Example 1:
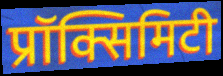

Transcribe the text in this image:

प्रॉक्सिमिटी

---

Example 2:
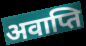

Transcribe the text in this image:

अवाप्ति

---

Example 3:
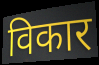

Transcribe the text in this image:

विकार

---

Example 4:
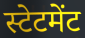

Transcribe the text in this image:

स्टेटमेंट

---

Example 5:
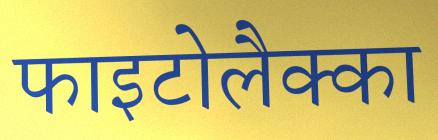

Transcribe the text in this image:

फाइटोलैक्का